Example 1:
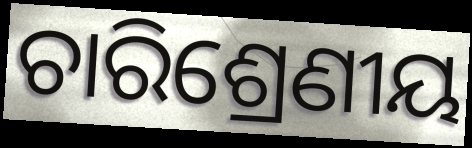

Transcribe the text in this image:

ଚାରିଶ୍ରେଣୀୟ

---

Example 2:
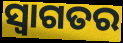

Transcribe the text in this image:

ସ୍ଵାଗତର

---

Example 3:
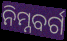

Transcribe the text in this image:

ନିମ୍ନବର୍ଗ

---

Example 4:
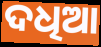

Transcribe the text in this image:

ଦଧିଆ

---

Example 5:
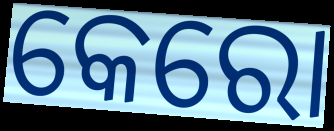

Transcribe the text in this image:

କେରୋ